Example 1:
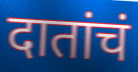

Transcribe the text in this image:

दातांचं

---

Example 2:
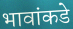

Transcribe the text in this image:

भावांकडे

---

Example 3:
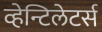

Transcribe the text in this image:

व्हेन्टिलेटर्स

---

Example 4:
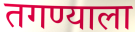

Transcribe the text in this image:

तगण्याला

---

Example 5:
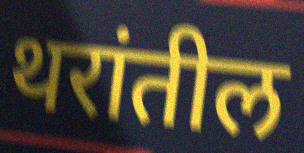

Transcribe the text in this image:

थरांतील